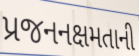
પ્રજનનક્ષમતાની